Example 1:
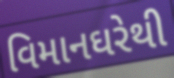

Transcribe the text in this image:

વિમાનઘરેથી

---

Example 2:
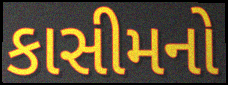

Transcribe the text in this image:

કાસીમનો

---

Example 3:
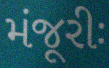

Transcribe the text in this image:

મંજૂરીઃ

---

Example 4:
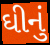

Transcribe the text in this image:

ઘીનું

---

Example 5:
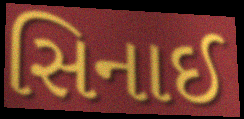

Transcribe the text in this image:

સિનાઈ